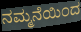
ನಮ್ಮನೆಯಿಂದ